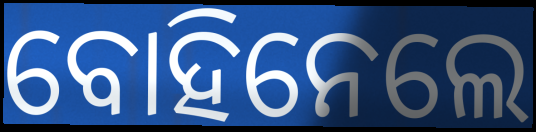
ବୋହିନେଲେ